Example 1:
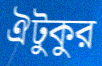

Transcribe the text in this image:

ঐটুকুর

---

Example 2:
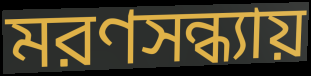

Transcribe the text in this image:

মরণসন্ধ্যায়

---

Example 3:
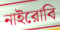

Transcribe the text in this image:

নাইরোবি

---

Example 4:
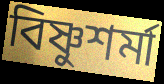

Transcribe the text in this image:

বিষ্ণুশর্মা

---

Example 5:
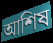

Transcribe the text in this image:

আশিষ